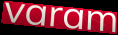
varam